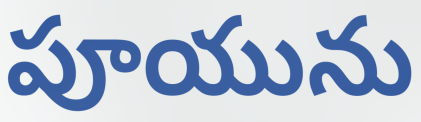
పూయును